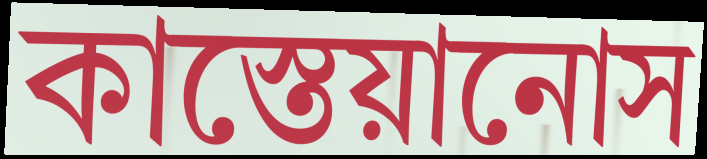
কাস্তেয়ানোস